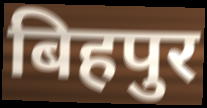
बिहपुर